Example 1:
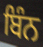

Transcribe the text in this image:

ਬਿੰਨ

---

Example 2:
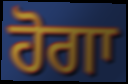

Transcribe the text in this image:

ਹੋਗਾ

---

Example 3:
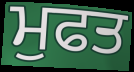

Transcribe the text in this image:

ਮੁਫਤ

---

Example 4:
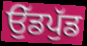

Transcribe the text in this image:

ਉੱਡਪੁੱਡ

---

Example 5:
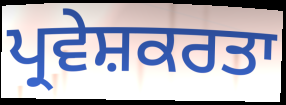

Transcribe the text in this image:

ਪ੍ਰਵੇਸ਼ਕਰਤਾ